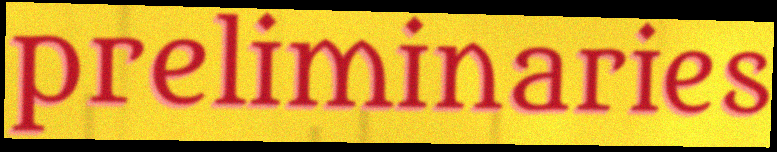
preliminaries